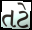
તટે